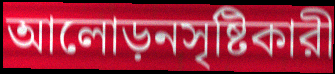
আলোড়নসৃষ্টিকারী